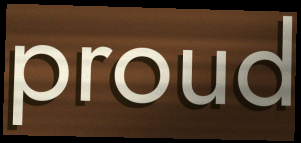
proud